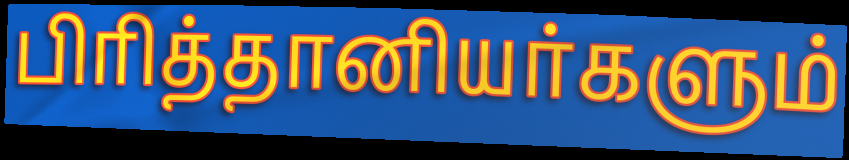
பிரித்தானியர்களும்